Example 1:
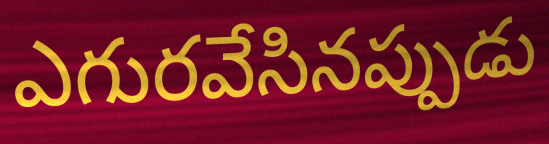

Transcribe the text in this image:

ఎగురవేసినప్పుడు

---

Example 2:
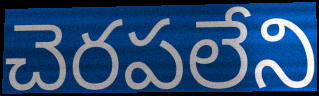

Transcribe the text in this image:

చెరపలేని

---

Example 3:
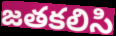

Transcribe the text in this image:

జతకలిసి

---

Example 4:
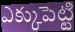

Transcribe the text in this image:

ఎక్కుపెట్టి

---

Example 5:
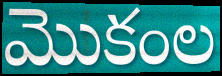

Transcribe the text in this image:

మొకంల